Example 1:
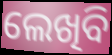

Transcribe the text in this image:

ଲେଖିବି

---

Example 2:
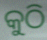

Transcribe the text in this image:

କୁଠି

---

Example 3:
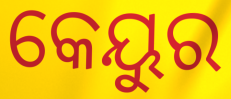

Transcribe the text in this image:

କେୟୁର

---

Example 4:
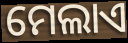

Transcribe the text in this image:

ମେଲାଏ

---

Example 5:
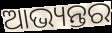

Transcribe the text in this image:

ଆଭ୍ୟନ୍ତର